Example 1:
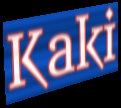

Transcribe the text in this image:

Kaki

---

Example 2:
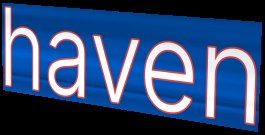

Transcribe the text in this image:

haven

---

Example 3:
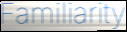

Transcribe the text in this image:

Familiarity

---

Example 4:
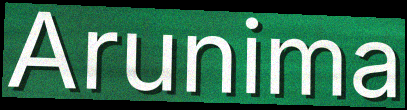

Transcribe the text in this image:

Arunima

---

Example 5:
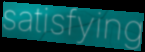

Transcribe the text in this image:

satisfying